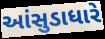
આંસુડાધારે